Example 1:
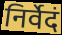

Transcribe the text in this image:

निर्वेदं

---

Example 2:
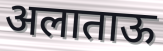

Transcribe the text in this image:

अलाताऊ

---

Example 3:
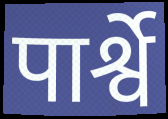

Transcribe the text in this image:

पार्श्वे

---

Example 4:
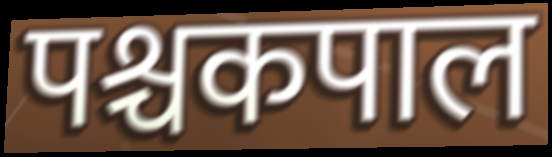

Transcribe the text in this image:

पश्चकपाल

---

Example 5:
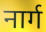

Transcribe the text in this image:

नार्ग